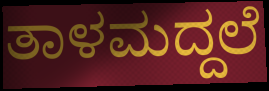
ತಾಳಮದ್ದಲೆ